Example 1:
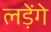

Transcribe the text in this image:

लड़ेंगे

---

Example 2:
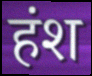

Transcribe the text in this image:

हंश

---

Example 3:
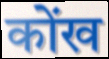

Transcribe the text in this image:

कोंख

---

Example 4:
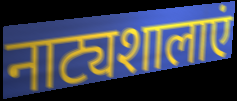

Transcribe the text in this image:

नाट्यशालाएं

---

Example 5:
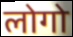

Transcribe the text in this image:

लोगो